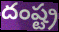
దంష్ట్ర